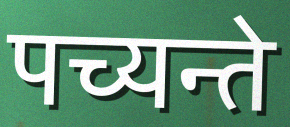
पच्यन्ते